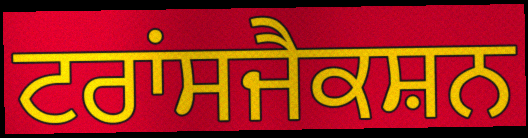
ਟਰਾਂਸਜੈਕਸ਼ਨ